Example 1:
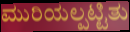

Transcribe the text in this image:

ಮುರಿಯಲ್ಪಟ್ಟಿತು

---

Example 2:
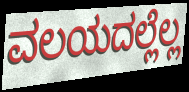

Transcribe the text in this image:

ವಲಯದಲ್ಲೆಲ್ಲ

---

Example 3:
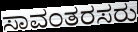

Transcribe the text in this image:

ಸಾವಂತರಸರು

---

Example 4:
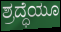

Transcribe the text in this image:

ಶ್ರದ್ಧೆಯೂ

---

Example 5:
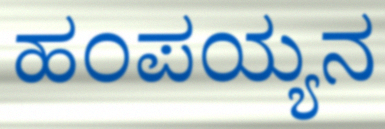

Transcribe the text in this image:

ಹಂಪಯ್ಯನ